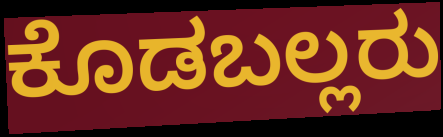
ಕೊಡಬಲ್ಲರು